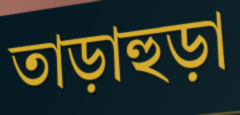
তাড়াহুড়া